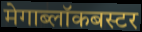
मेगाब्लॉकबस्टर